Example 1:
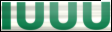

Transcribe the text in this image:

IUUU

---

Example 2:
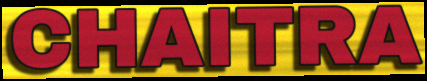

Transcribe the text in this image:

CHAITRA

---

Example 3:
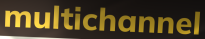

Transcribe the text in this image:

multichannel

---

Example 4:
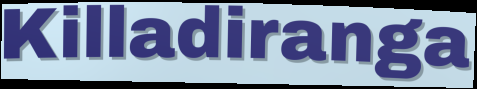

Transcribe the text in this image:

Killadiranga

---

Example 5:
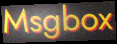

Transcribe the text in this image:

Msgbox